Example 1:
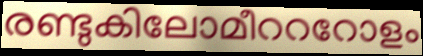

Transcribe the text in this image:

രണ്ടുകിലോമീറററോളം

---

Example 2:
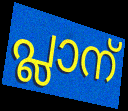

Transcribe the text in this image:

പ്ലാന്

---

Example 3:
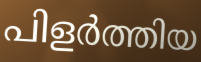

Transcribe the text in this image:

പിളർത്തിയ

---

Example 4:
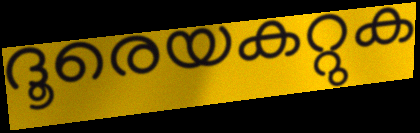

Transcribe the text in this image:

ദൂരെയകറ്റുക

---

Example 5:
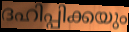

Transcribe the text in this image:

ദഹിപ്പിക്കയും